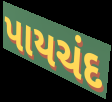
પાયચંદ